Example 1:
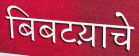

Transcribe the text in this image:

बिबटय़ाचे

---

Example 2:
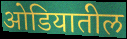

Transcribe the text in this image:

ओडियातील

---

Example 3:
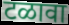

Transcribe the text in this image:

टळावा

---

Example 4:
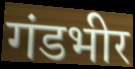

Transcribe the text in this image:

गंडभीर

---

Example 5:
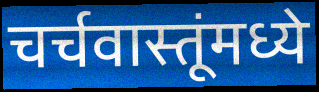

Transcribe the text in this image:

चर्चवास्तूंमध्ये